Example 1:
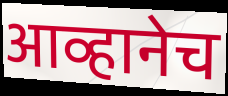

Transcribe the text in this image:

आव्हानेच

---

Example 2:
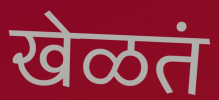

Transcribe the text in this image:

खेळतं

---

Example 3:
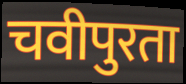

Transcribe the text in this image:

चवीपुरता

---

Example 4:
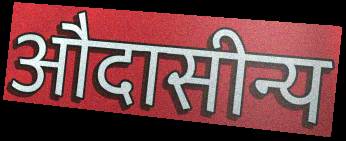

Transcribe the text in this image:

औदासीन्य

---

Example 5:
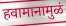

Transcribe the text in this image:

हवामानामुळं